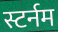
स्टर्नम